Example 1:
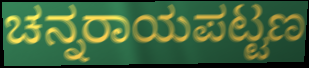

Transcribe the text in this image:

ಚನ್ನರಾಯಪಟ್ಟಣ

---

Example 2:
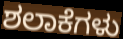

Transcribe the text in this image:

ಶಲಾಕೆಗಳು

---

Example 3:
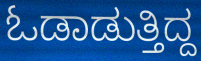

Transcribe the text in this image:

ಓಡಾಡುತ್ತಿದ್ದ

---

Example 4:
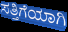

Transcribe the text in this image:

ಸತ್ತಿಗೆಯಾಗಿ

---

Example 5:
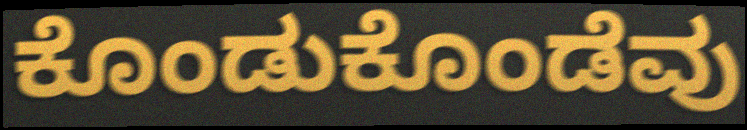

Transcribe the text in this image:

ಕೊಂಡುಕೊಂಡೆವು